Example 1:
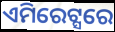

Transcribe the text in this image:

ଏମିରେଟ୍ସରେ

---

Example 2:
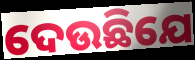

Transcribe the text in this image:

ଦେଉଛିଯେ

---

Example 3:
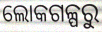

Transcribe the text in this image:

ଲୋକଗଳ୍ପରୁ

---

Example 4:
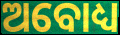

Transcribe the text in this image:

ଅବୋଧ୍ୟ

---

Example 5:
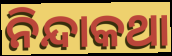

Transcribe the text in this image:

ନିନ୍ଦାକଥା